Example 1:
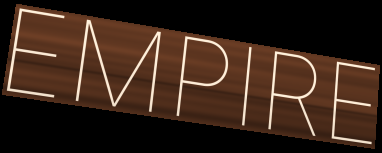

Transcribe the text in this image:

EMPIRE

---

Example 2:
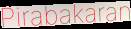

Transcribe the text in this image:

Pirabakaran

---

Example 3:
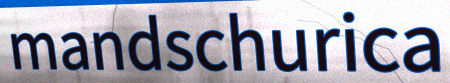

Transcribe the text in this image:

mandschurica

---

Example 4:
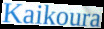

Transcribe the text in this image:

Kaikoura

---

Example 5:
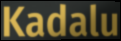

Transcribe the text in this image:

Kadalu